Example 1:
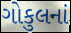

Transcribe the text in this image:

ગોકુલનાં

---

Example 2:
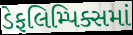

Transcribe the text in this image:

ડેફલિમ્પિક્સમાં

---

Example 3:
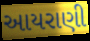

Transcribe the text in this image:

આયરાણી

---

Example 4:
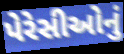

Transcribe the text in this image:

પેરેસીઓનું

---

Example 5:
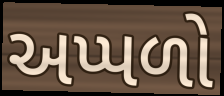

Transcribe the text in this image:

અપ્પળો